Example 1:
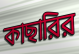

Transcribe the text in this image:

কাছারির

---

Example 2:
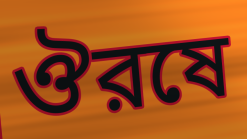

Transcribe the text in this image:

ঔরষে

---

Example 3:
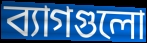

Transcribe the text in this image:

ব্যাগগুলো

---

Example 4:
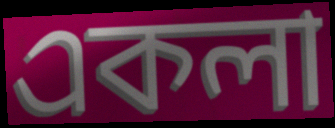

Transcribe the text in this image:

একলা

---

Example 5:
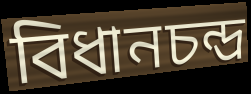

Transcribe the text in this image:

বিধানচন্দ্র